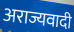
अराज्यवादी